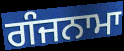
ਗੰਜਨਾਮਾ